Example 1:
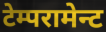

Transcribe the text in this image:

टेम्परामेन्ट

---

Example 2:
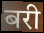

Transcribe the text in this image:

बरी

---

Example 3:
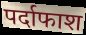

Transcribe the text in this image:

पर्दाफाश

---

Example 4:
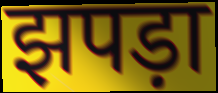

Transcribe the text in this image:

झपड़ा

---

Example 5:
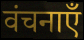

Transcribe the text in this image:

वंचनाएँ